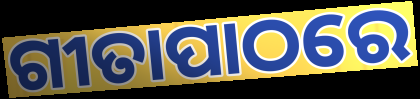
ଗୀତାପାଠରେ